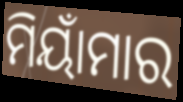
ମିୟାଁମାର